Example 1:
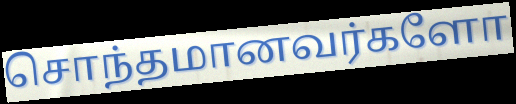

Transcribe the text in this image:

சொந்தமானவர்களோ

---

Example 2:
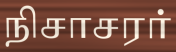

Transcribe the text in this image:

நிசாசரர்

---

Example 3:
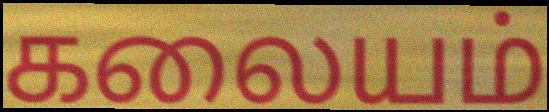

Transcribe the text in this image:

கலையம்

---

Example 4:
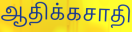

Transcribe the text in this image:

ஆதிக்கசாதி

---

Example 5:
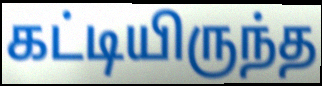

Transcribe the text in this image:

கட்டியிருந்த